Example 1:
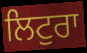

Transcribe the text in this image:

ਲਿਟੁਰਾ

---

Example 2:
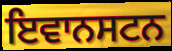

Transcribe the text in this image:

ਇਵਾਨਸਟਨ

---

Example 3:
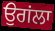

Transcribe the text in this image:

ਉਗਂਲਾ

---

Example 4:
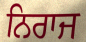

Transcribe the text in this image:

ਨਿਰਾਜ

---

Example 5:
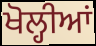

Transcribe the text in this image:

ਖੋਲ੍ਹੀਆਂ